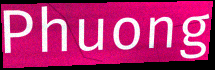
Phuong